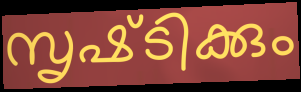
സൃഷ്‌ടിക്കും